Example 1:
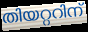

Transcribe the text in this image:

തിയറ്ററിന്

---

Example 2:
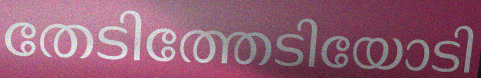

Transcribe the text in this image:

തേടിത്തേടിയോടി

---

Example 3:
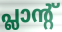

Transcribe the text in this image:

പ്ലാന്റ്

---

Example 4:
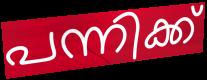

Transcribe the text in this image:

പന്നിക്ക്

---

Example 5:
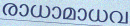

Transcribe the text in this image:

രാധാമാധവ